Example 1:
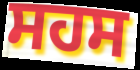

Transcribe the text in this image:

ਸਹਸ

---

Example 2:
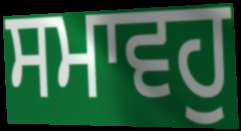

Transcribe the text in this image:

ਸਮਾਵਹੁ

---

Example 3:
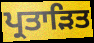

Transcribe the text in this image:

ਪ੍ਰਤਾੜਿਤ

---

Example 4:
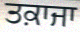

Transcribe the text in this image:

ਤਕ਼ਾਜਾ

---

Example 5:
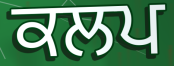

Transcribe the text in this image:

ਕਲਪ